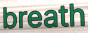
breath